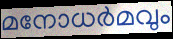
മനോധർമവും